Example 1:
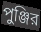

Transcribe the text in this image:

পুঞ্জির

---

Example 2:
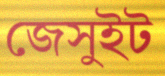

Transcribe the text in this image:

জেসুইট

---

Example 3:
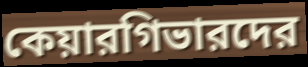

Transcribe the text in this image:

কেয়ারগিভারদের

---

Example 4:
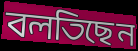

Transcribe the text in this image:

বলতিছেন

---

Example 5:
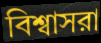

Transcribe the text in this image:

বিশ্বাসরা